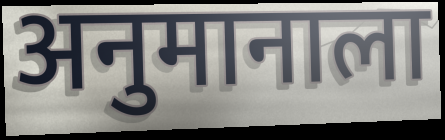
अनुमानाला